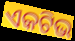
ଏକଟିଭ